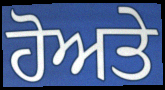
ਹੋਅਤੇ